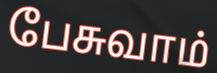
பேசுவாம்